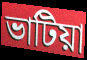
ভাটিয়া